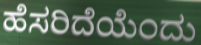
ಹೆಸರಿದೆಯೆಂದು